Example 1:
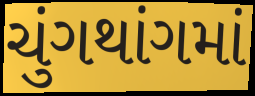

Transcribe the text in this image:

ચુંગથાંગમાં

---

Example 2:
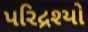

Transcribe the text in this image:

પરિદ્રશ્યો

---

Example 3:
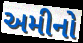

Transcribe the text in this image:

અમીનો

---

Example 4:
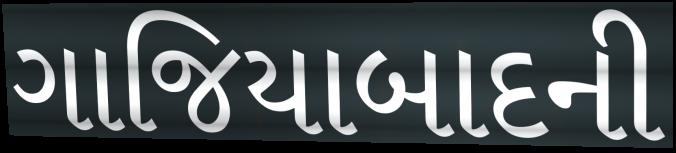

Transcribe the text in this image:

ગાજિયાબાદની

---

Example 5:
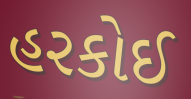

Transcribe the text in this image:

હરકોઈ